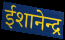
ईशानेन्द्र